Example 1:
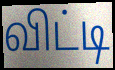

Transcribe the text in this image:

விட்டி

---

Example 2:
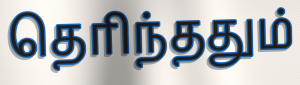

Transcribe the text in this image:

தெரிந்ததும்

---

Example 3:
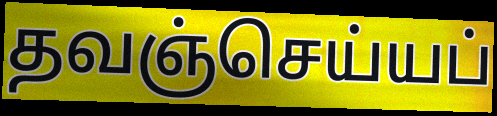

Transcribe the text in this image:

தவஞ்செய்யப்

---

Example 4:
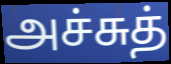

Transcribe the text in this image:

அச்சுத்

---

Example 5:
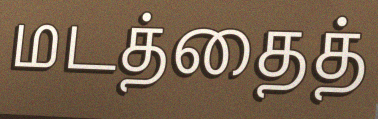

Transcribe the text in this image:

மடத்தைத்